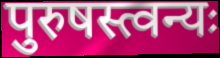
पुरुषस्त्वन्यः